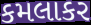
કમલાકર